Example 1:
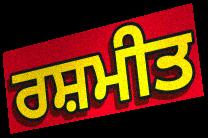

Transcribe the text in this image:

ਰਸ਼ਮੀਤ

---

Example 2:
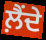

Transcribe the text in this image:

ਲ਼ੈਂਦੇ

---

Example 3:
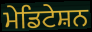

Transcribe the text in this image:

ਮੇਡਿਟੇਸ਼ਨ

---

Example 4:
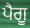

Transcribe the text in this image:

ਪੈਗੂ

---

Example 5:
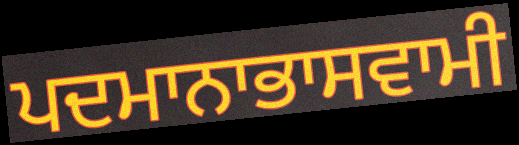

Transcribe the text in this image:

ਪਦਮਾਨਾਭਾਸਵਾਮੀ